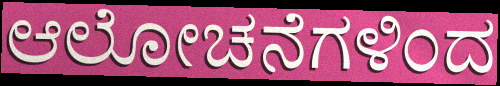
ಆಲೋಚನೆಗಳಿಂದ